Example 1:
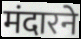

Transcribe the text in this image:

मंदारने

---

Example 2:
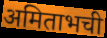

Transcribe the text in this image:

अमिताभची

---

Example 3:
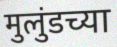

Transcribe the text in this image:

मुलुंडच्या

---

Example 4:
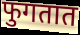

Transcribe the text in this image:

फुगतात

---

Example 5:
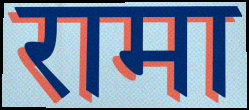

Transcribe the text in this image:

रामा